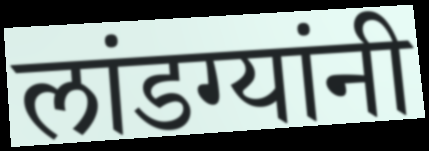
लांडग्यांनी